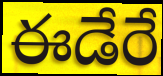
ఈడేరే